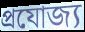
প্ৰযোজ্য